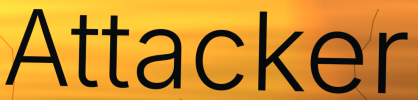
Attacker